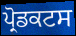
ਪ੍ਰੋਡਕਟਸ